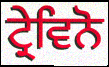
ਟ੍ਰੇਵਿਨੋ